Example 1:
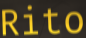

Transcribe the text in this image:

Rito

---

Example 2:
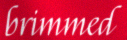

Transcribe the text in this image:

brimmed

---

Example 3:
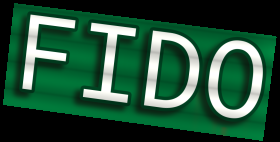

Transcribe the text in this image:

FIDO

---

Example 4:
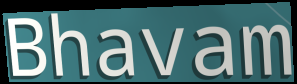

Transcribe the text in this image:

Bhavam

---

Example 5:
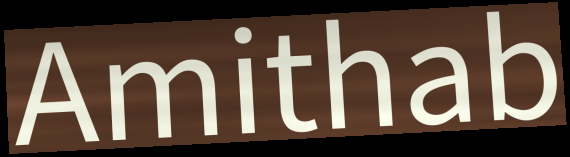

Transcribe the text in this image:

Amithab